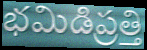
భమిడిప్రత్తి